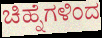
ಚಿಹ್ನೆಗಳಿಂದ